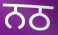
ਨਠ